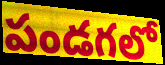
పండగలో